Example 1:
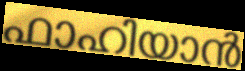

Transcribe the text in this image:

ഫാഹിയാൻ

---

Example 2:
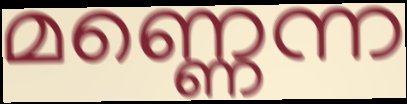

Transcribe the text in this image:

മണ്ണെന്ന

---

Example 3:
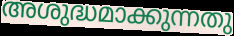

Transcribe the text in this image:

അശുദ്ധമാക്കുന്നതു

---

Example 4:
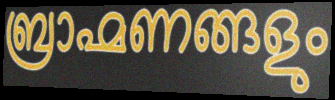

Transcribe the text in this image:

ബ്രാഹ്മണങ്ങളും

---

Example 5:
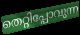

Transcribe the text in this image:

തെറ്റിപ്പോവുന്ന